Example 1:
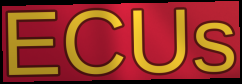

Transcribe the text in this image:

ECUs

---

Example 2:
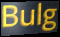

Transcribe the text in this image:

Bulg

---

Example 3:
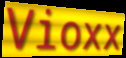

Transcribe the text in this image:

Vioxx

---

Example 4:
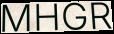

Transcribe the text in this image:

MHGR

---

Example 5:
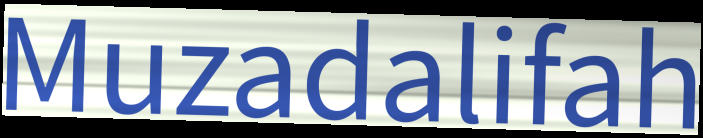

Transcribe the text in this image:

Muzadalifah